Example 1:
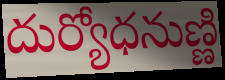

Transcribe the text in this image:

దుర్యోధనుణ్ణి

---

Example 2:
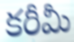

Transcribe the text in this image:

కరీమీ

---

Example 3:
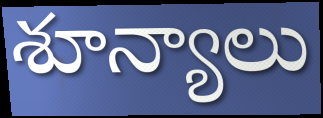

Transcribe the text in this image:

శూన్యాలు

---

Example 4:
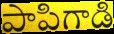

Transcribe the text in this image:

పాపిగాడి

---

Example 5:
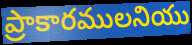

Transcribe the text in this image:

ప్రాకారములనియు